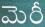
మెరీ